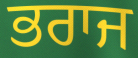
ਭਰਾਜ